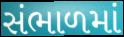
સંભાળમાં